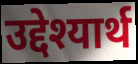
उद्देश्यार्थ